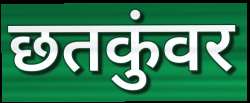
छतकुंवर